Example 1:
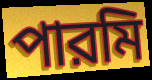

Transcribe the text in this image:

পারমি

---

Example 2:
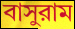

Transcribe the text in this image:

বাসুরাম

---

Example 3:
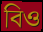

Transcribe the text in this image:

বিও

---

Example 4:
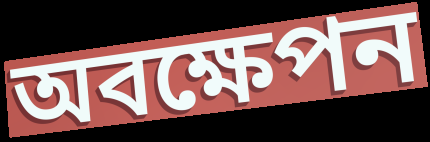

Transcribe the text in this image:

অবক্ষেপন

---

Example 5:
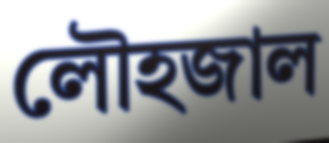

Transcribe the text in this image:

লৌহজাল